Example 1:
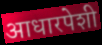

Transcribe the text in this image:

आधारपेशी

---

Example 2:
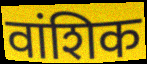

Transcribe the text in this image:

वांशिक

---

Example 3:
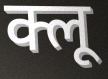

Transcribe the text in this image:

क्लू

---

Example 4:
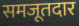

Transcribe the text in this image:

समजूतदार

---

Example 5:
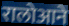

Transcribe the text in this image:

रालोआने